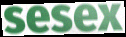
sesex